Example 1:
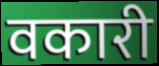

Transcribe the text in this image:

वकारी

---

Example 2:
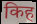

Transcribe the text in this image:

किह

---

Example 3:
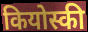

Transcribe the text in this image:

कियोस्की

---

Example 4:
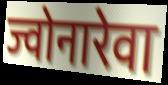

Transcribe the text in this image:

ज्वोनारेवा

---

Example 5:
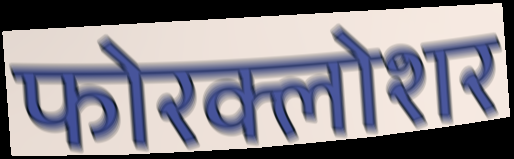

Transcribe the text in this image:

फोरक्लोशर